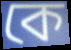
কে